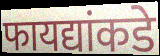
फायद्यांकडे